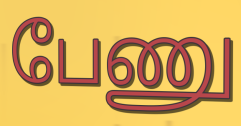
பேணு